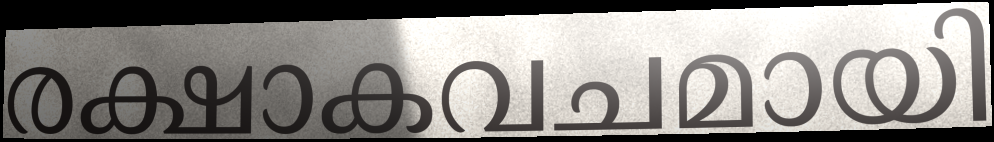
രക്ഷാകവചമായി